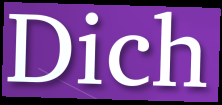
Dich